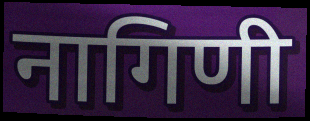
नागिणी